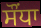
ਸੌਂਧਾ